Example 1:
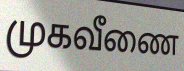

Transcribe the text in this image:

முகவீணை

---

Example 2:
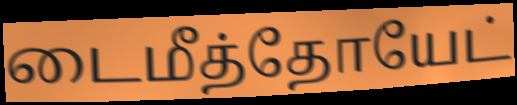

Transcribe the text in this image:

டைமீத்தோயேட்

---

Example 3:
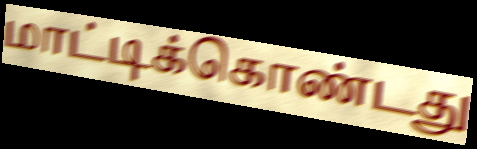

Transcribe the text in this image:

மாட்டிக்கொண்டது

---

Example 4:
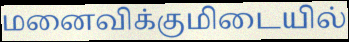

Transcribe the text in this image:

மனைவிக்குமிடையில்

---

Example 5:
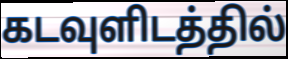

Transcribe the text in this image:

கடவுளிடத்தில்